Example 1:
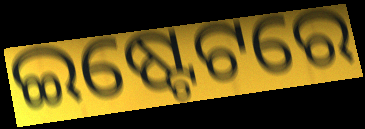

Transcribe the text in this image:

ଇଷ୍ଟେଟରେ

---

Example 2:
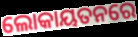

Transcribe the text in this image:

ଲୋକାୟତନରେ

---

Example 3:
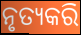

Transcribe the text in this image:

ନୃତ୍ୟକରି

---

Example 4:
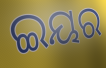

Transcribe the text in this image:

ଇୟର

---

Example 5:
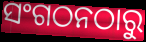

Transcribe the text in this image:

ସଂଗଠନଠାରୁ